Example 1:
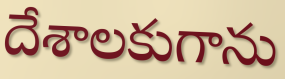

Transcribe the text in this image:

దేశాలకుగాను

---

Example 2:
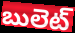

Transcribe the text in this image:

బులెట్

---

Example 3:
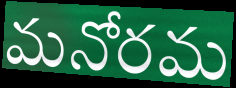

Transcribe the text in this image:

మనోరమ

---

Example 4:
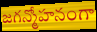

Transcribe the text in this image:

జగన్మోహనంగా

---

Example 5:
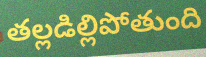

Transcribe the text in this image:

తల్లడిల్లిపోతుంది